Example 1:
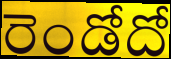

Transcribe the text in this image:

రెండోదో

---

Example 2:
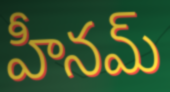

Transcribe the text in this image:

హీనమ్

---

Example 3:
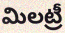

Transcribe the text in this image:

మిలట్రీ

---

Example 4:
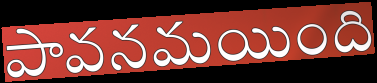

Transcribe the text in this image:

పావనమయింది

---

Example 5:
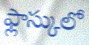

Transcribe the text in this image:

ఫ్లాస్కులో